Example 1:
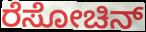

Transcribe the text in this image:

ರೆಸೋಚಿನ್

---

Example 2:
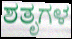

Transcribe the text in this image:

ಶತೃಗಳ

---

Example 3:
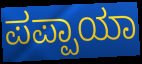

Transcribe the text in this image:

ಪಪ್ಪಾಯಾ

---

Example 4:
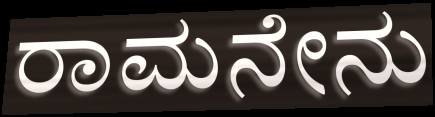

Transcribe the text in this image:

ರಾಮನೇನು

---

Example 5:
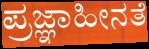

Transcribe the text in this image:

ಪ್ರಜ್ಞಾಹೀನತೆ